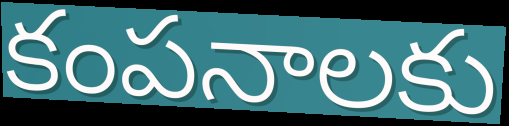
కంపనాలకు